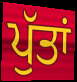
ਪੁੱਤਾਂ